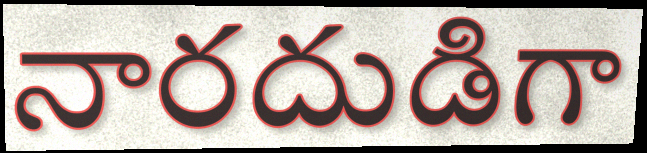
నారదుడిగా